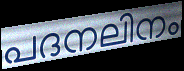
പദനലിനം